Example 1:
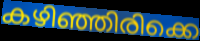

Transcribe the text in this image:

കഴിഞ്ഞിരിക്കെ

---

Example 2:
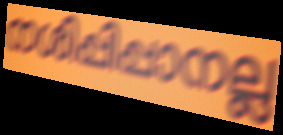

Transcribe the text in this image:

നശിപ്പിപ്പാനല്ല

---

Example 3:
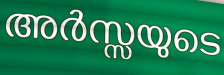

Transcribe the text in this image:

അർസ്സയുടെ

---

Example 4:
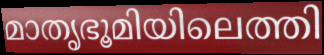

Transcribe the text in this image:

മാതൃഭൂമിയിലെത്തി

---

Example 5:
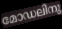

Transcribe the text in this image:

മോഡലിനു